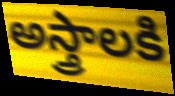
అస్త్రాలకి